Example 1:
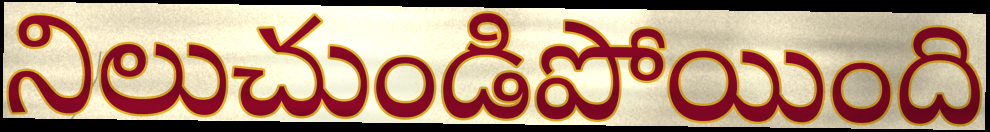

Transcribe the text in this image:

నిలుచుండిపోయింది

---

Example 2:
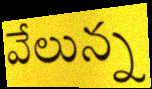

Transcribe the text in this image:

వేలున్న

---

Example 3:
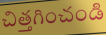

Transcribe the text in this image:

చిత్తగించండి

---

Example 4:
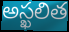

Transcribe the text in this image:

అస్ఖలిత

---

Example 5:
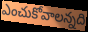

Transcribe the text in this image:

ఎంచుకోవాలన్నది